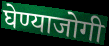
घेण्याजोगी